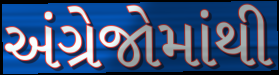
અંગ્રેજોમાંથી